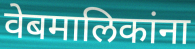
वेबमालिकांना